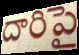
దారిపై